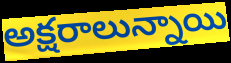
అక్షరాలున్నాయి